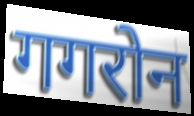
गगरोन